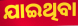
ଯାଇଥିବା